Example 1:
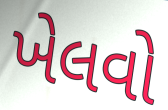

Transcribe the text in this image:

ખેલવો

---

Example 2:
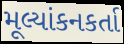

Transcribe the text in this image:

મૂલ્યાંકનકર્તા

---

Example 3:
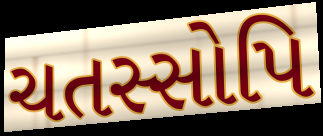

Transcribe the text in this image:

ચતસ્સોપિ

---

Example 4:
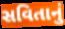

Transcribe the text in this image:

સવિતાનું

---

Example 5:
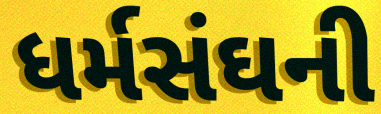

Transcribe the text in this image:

ધર્મસંઘની